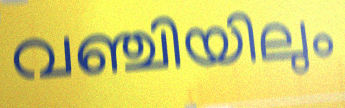
വഞ്ചിയിലും